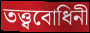
তত্ত্ববোধিনী